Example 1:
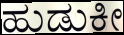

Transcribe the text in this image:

ಹುಡುಕೀ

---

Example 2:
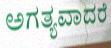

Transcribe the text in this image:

ಅಗತ್ಯವಾದರೆ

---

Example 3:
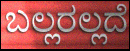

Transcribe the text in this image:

ಬಲ್ಲರಲ್ಲದೆ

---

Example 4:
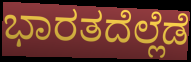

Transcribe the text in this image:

ಭಾರತದೆಲ್ಲೆಡೆ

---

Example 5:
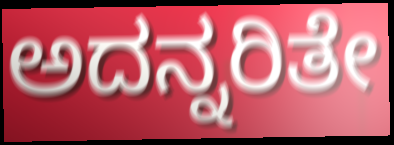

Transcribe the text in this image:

ಅದನ್ನರಿತೇ